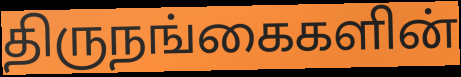
திருநங்கைகளின்